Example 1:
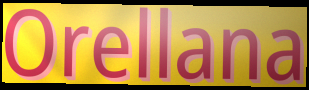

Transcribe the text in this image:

Orellana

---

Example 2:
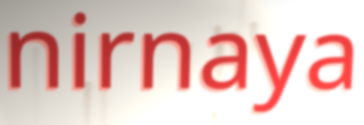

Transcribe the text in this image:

nirnaya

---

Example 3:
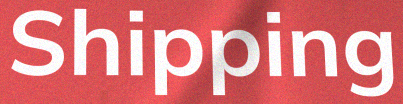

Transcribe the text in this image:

Shipping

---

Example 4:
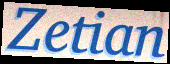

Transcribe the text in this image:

Zetian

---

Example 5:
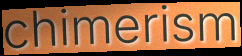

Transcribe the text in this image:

chimerism